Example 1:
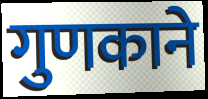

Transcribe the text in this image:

गुणकाने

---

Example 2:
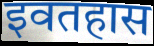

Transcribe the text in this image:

इवतहास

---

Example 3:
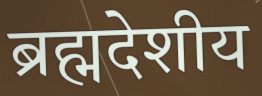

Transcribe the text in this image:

ब्रह्मदेशीय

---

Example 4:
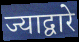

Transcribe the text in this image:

ज्याद्वारे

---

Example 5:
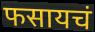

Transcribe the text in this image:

फसायचं